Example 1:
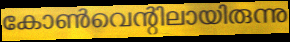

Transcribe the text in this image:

കോൺവെന്റിലായിരുന്നു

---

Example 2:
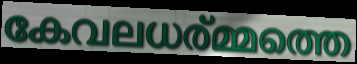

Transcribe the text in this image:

കേവലധര്മ്മത്തെ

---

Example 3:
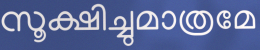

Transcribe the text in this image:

സൂക്ഷിച്ചുമാത്രമേ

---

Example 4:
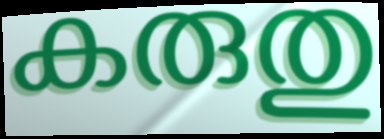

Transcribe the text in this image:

കരുതു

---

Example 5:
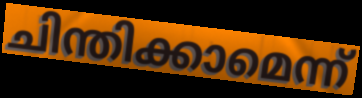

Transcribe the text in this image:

ചിന്തിക്കാമെന്ന്